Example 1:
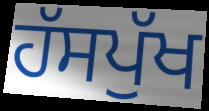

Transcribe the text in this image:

ਹੱਸਪੁੱਖ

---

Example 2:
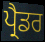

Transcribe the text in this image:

ਪ੍ਰੈਡਰ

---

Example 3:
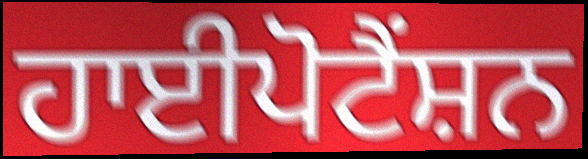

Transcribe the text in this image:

ਹਾਈਪੋਟੈਂਸ਼ਨ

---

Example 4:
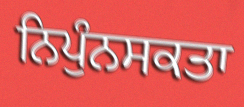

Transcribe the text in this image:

ਨਿਪੁੰਨਸਕਤਾ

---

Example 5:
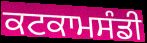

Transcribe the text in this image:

ਕਟਕਾਮਸੰਡੀ